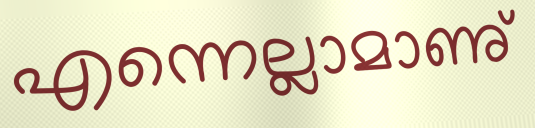
എന്നെല്ലാമാണു്